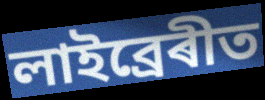
লাইব্ৰেৰীত